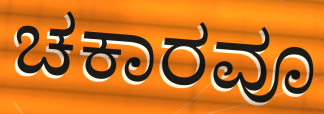
ಚಕಾರವೂ